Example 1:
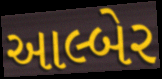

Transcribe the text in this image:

આલ્બેર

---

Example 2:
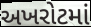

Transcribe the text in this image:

અખરોટમાં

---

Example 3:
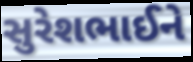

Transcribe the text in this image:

સુરેશભાઈને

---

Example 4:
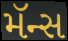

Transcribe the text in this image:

મૅન્સ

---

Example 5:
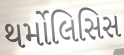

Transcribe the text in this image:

થર્મોલિસિસ